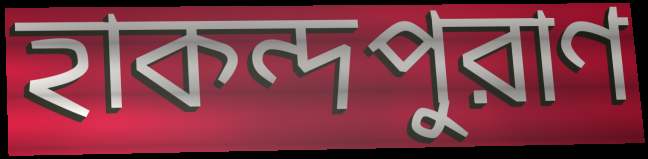
হাকন্দপুরাণ